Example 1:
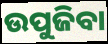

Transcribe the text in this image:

ଉପୁଜିବା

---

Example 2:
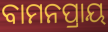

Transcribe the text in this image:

ବାମନପ୍ରାୟ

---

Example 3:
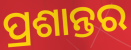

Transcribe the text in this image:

ପ୍ରଶାନ୍ତର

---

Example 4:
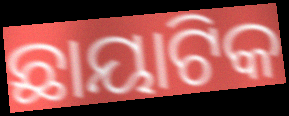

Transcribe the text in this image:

ଛାୟାଟିକ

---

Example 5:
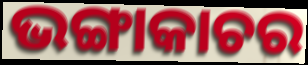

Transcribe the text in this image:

ଭଙ୍ଗାକାଚର